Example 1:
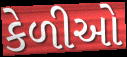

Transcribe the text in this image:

કેળીઓ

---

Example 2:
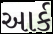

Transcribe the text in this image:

આર્ક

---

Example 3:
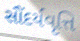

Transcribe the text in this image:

સૌંદર્યવૃત્તિ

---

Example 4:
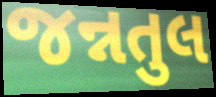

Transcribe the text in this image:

જન્નતુલ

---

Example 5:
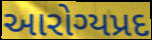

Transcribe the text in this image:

આરોગ્યપ્રદ